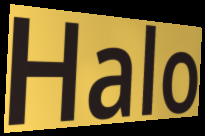
Halo